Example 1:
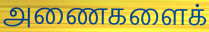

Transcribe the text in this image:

அணைகளைக்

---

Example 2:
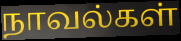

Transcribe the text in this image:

நாவல்கள்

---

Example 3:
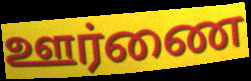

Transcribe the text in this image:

ஊர்ணை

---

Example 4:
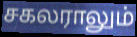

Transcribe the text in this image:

சகலராலும்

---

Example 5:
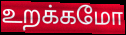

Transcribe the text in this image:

உறக்கமோ